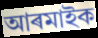
আৰমাইক